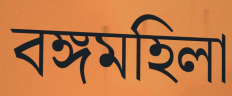
বঙ্গমহিলা